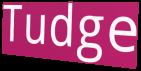
Tudge